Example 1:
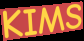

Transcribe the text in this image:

KIMS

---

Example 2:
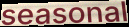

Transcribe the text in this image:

seasonal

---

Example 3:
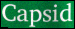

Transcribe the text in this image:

Capsid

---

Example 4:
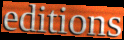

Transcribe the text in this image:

editions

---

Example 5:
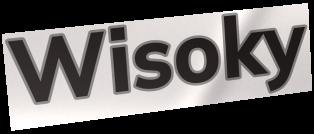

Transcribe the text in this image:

Wisoky